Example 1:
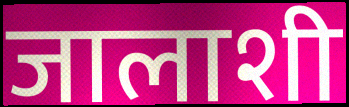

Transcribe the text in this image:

जालाशी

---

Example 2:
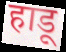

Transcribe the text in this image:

हाडू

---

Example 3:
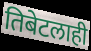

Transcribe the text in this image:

तिबेटलाही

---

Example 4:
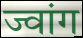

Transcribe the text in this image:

ज्वांग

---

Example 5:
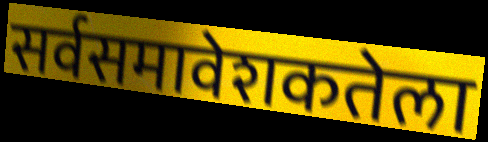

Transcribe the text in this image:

सर्वसमावेशकतेला